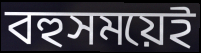
বহুসময়েই